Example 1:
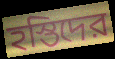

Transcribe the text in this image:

হস্তিদের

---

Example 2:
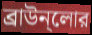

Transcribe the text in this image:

ব্রাউন্লোর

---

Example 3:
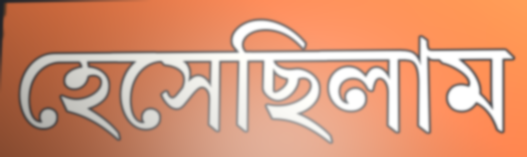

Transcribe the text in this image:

হেসেছিলাম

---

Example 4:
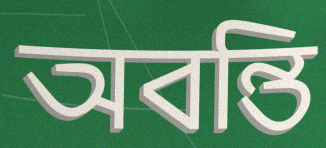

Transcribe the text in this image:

অবন্তি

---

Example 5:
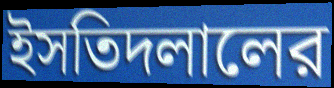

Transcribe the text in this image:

ইসতিদলালের